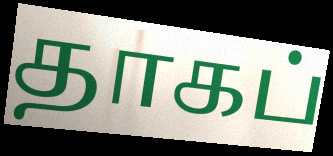
தாகப்